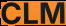
CLM